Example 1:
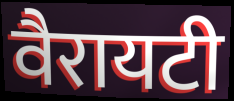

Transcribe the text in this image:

वैरायटी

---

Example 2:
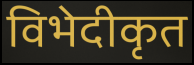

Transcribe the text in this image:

विभेदीकृत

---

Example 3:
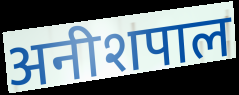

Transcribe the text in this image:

अनीशपाल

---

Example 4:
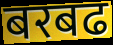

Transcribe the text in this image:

बरबढ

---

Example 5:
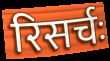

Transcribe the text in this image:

रिसर्चः